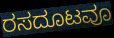
ರಸದೂಟವೂ